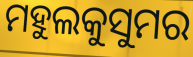
ମହୁଲକୁସୁମର